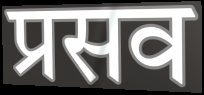
प्रसव